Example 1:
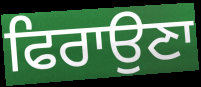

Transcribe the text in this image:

ਫਿਰਾਉਣਾ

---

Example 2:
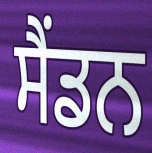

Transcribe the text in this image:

ਸੈਂਡਨ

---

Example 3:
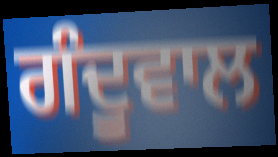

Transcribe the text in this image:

ਗੰਦੂਵਾਲ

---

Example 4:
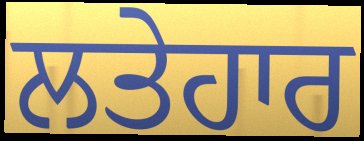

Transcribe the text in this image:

ਲਤੇਹਾਰ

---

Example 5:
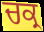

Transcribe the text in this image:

ਚਕ੍ਰ